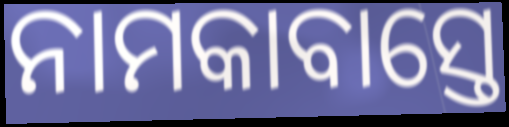
ନାମକାବାସ୍ତେ